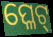
ପ୍ଳେଟ୍